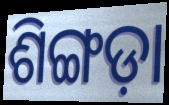
ଶିଙ୍ଗଡ଼ା